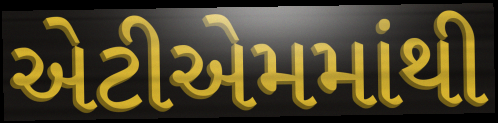
એટીએમમાંથી